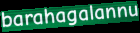
barahagalannu